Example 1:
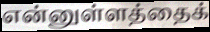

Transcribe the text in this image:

என்னுள்ளத்தைக்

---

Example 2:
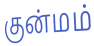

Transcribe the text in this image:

குன்மம்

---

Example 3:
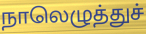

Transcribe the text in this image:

நாலெழுத்துச்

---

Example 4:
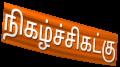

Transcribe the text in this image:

நிகழ்ச்சிகட்கு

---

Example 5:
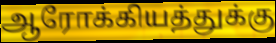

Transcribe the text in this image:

ஆரோக்கியத்துக்கு